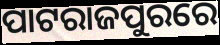
ପାଟରାଜପୁରରେ